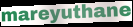
mareyuthane